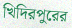
খিদিরপুরের